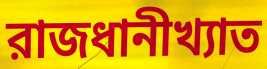
রাজধানীখ্যাত